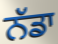
ਨੱਡਾ